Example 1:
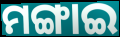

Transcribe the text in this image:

ମଙ୍ଗାଇ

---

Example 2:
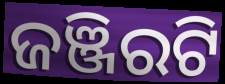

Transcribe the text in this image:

ଜଞ୍ଜିରଟି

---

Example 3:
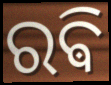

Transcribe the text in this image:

ରଵି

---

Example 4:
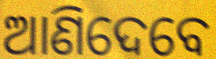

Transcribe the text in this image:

ଆଣିଦେବେ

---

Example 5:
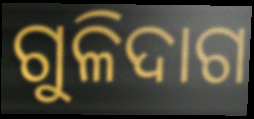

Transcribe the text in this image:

ଗୁଳିଦାଗ